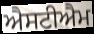
ਐਸਟੀਐਮ